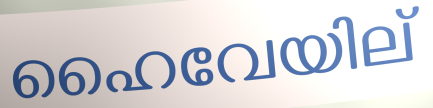
ഹൈവേയില്